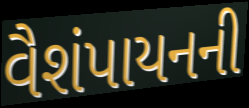
વૈશંપાયનની